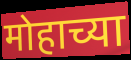
मोहाच्या